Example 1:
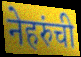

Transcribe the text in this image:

नेहरुंची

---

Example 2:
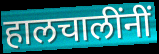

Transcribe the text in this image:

हालचालींनीं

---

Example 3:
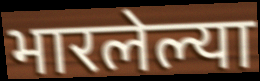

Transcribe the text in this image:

भारलेल्या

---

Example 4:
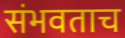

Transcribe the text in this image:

संभवताच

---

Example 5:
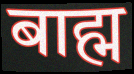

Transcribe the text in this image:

बाह्म